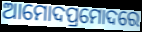
ଆମୋଦପ୍ରମୋଦରେ